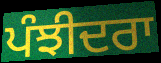
ਪੰਝੀਦਰਾ